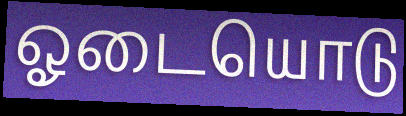
ஓடையொடு